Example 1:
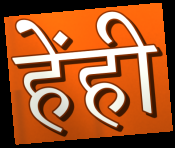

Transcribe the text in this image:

हेंही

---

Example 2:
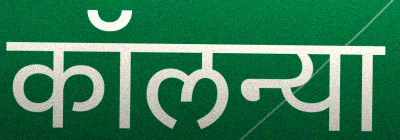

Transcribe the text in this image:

कॉलन्या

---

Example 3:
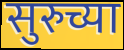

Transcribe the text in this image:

सुरुच्या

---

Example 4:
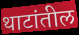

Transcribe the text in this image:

थाटांतील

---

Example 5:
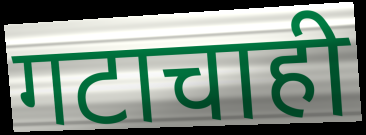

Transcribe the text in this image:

गटाचाही